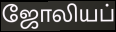
ஜோலியப்